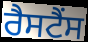
ਰੈਸਟੈਂਸ